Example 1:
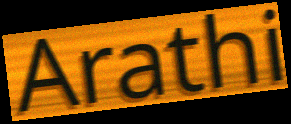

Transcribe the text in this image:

Arathi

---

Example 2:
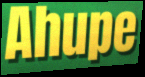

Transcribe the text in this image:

Ahupe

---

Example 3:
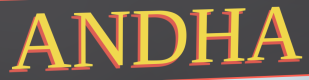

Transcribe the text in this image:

ANDHA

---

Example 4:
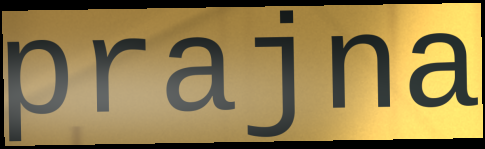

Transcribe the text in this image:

prajna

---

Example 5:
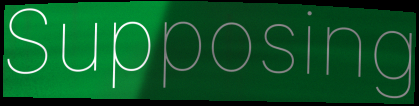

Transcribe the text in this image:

Supposing